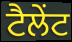
ਟੈਲੇੰਟ